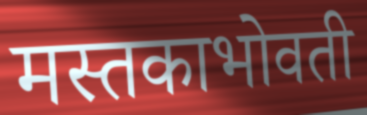
मस्तकाभोवती